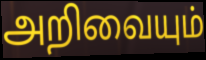
அறிவையும்